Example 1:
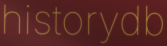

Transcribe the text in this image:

historydb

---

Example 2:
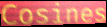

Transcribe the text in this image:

Cosines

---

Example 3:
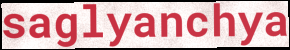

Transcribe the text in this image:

saglyanchya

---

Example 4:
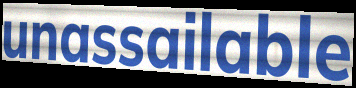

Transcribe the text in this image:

unassailable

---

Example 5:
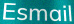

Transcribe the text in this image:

Esmail